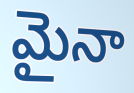
మైనా